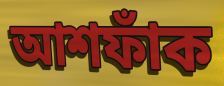
আশফাঁক